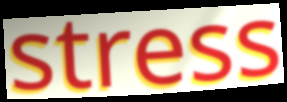
stress